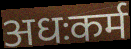
अधःकर्म